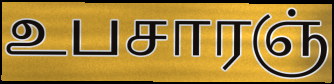
உபசாரஞ்